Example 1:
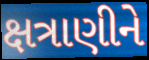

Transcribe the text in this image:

ક્ષત્રાણીને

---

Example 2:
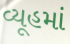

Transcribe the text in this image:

વ્યૂહમાં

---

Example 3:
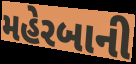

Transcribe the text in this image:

મહેરબાની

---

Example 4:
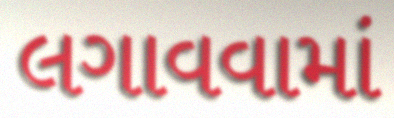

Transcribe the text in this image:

લગાવવામાં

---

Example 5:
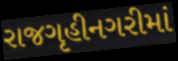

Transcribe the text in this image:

રાજગૃહીનગરીમાં